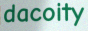
dacoity